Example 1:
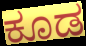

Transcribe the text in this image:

ಕೂಡ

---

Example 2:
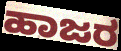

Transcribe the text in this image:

ಹಾಜರ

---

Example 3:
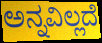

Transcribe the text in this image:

ಅನ್ನವಿಲ್ಲದೆ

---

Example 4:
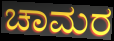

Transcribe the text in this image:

ಚಾಮರ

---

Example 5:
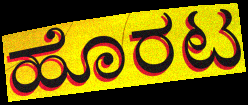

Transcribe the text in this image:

ಹೊರಟ